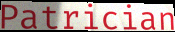
Patrician